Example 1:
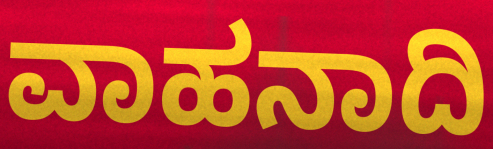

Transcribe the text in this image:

ವಾಹನಾದಿ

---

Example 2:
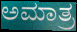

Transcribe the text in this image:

ಅಮಾತ್ರ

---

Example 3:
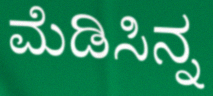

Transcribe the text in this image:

ಮೆಡಿಸಿನ್ನ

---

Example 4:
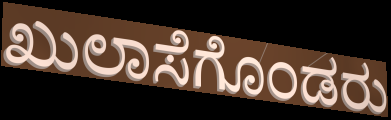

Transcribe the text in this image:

ಖುಲಾಸೆಗೊಂಡರು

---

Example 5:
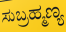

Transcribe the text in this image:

ಸುಬ್ರಹ್ಮಣ್ಯ